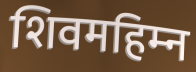
शिवमहिम्न